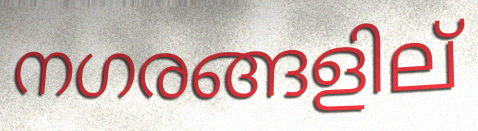
നഗരങ്ങളില്